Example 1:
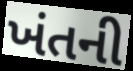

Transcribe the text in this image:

ખંતની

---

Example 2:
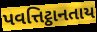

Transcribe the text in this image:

પવત્તિટ્ઠાનતાય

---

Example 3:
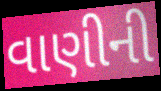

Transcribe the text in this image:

વાણીની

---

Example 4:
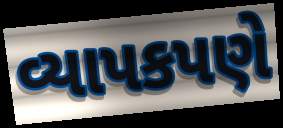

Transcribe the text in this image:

વ્યાપકપણે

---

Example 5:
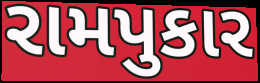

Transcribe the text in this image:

રામપુકાર